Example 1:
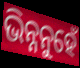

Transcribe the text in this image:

ଭିନ୍ନନୁହେଁ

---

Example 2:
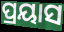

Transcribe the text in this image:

ପ୍ରୟାସ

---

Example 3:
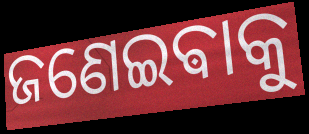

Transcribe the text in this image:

ଜଣେଇଵାକୁ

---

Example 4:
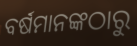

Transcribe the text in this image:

ବର୍ଷମାନଙ୍କଠାରୁ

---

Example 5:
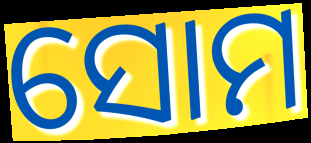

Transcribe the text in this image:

ସୋମ